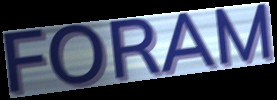
FORAM